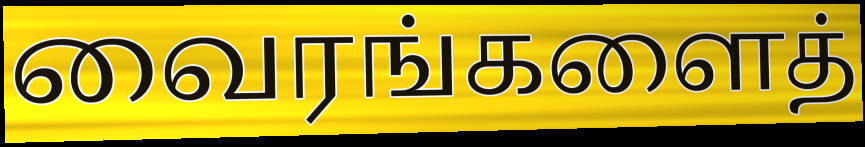
வைரங்களைத்